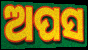
ଅପସ